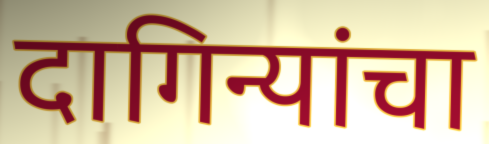
दागिन्यांचा